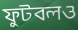
ফুটবলও